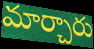
మార్చారు